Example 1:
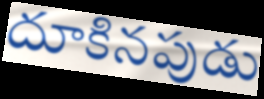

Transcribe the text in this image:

దూకినపుడు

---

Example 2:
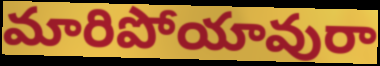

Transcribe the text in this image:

మారిపోయావురా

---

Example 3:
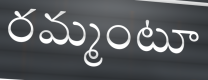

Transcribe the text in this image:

రమ్మంటూ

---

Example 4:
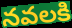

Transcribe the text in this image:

నవలకి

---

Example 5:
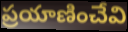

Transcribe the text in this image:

ప్రయాణించేవి